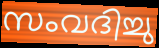
സംവദിച്ചു